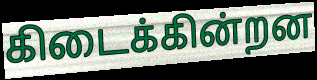
கிடைக்கின்றன